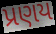
પ્રણય